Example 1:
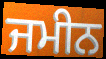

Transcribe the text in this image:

ਜਮੀਨ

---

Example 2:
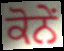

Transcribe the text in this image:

ਕੋਨੇਂ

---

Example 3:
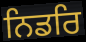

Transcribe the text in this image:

ਨਿਡਰਿ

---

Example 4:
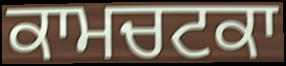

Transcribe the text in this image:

ਕਾਮਚਟਕਾ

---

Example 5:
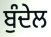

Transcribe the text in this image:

ਬੁੰਦੇਲ